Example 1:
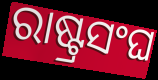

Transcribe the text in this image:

ରାଷ୍ଟ୍ରସଂଘ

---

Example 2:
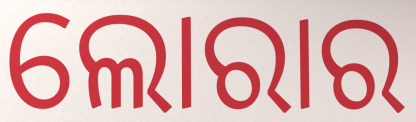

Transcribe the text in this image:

ଲୋରାର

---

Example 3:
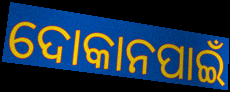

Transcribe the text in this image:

ଦୋକାନପାଇଁ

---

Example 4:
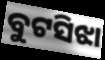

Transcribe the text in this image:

ବୁଟସିଝା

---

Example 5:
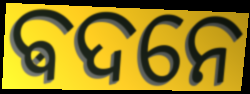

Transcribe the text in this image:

ଵଦନେ